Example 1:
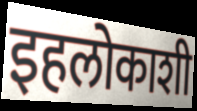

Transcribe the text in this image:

इहलोकाशी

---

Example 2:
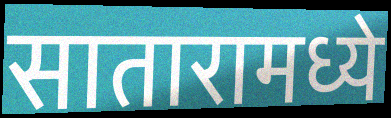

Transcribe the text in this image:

सातारामध्ये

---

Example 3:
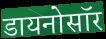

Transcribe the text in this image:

डायनोसॉर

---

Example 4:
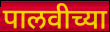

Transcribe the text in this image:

पालवीच्या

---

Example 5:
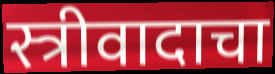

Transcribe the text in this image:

स्त्रीवादाचा